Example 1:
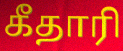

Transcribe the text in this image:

கீதாரி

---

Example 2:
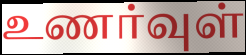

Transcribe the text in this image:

உணர்வுள்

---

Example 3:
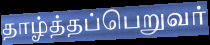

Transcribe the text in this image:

தாழ்த்தப்பெறுவர்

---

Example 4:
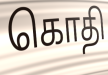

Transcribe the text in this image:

கொதி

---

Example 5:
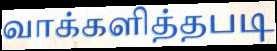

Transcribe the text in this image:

வாக்களித்தபடி